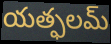
యత్ఫలమ్